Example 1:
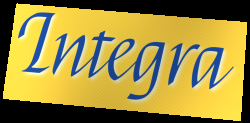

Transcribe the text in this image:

Integra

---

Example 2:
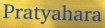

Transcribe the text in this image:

Pratyahara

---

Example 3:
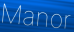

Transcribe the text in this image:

Manor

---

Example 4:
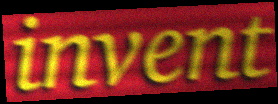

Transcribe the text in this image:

invent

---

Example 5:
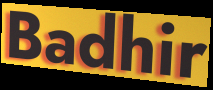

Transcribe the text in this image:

Badhir